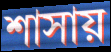
শাসায়